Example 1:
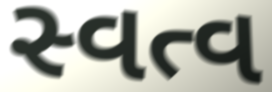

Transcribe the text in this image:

સ્વત્વ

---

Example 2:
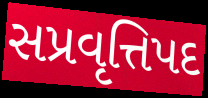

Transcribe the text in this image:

સપ્રવૃત્તિપદ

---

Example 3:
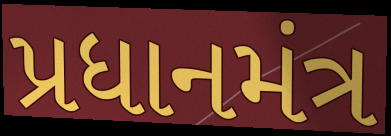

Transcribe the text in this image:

પ્રધાનમંત્ર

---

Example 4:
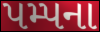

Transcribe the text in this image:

પમ્પના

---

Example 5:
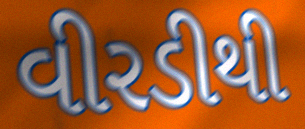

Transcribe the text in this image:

વીરડીથી